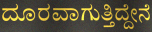
ದೂರವಾಗುತ್ತಿದ್ದೇನೆ